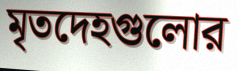
মৃতদেহগুলোর